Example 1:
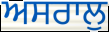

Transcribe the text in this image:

ਅਸਰਾਲੁ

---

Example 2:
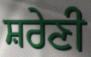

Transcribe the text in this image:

ਸ਼ਰੇਣੀ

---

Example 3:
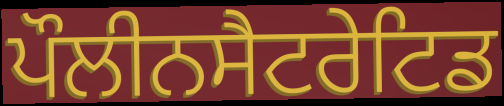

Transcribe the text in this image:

ਪੌਲੀਨਸੈਟਰੇਟਿਡ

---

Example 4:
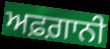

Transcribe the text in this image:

ਅਫ਼ਗ਼ਾਨੀ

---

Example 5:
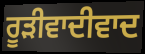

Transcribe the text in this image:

ਰੂੜੀਵਾਦੀਵਾਦ